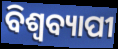
ବିଶ୍ୱବ୍ୟାପୀ